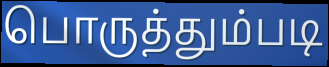
பொருத்தும்படி